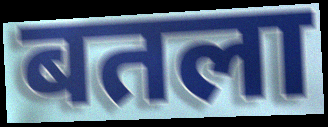
बतला